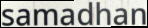
samadhan